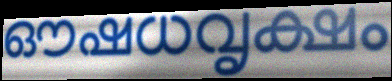
ഔഷധവൃക്ഷം